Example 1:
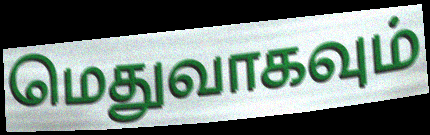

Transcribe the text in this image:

மெதுவாகவும்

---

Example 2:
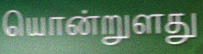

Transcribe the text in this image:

யொன்றுளது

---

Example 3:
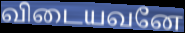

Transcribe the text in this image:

விடையவனே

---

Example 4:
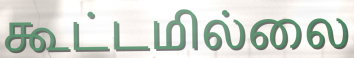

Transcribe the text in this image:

கூட்டமில்லை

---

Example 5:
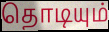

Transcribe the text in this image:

தொடியும்